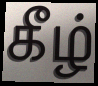
கீழ்